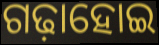
ଗଢ଼ାହୋଇ